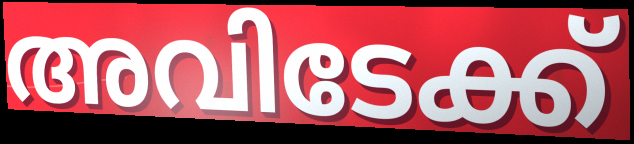
അവിടേക്ക്